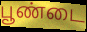
பூண்டை